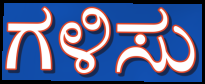
ಗಳಿಸು